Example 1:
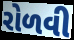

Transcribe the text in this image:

રોળવી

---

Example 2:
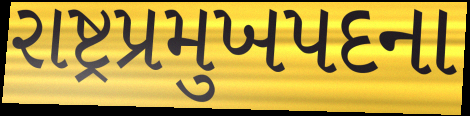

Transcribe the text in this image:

રાષ્ટ્રપ્રમુખપદના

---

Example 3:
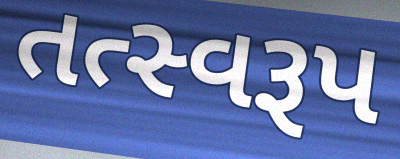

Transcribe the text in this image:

તત્સ્વરૂપ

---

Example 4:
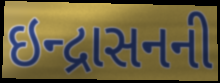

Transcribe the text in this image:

ઇન્દ્રાસનની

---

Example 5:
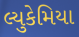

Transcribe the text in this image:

લ્યુકેમિયા